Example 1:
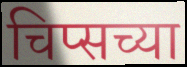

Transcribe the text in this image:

चिप्सच्या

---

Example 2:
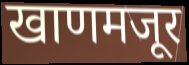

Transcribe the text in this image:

खाणमजूर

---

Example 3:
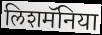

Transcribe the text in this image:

लिशमॅनिया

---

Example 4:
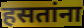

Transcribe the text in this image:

हसतांना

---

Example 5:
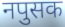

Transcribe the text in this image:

नपुसक